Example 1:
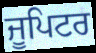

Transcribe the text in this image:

ਜੂਪਿਟਰ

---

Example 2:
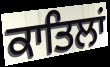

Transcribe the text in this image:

ਕਾਤਿਲਾਂ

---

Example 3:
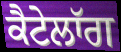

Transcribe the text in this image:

ਕੈਟੇਲਾੱਗ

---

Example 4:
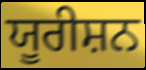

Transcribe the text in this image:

ਯੂਰੀਸ਼ਨ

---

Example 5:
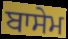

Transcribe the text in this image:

ਬਾਸੇਮ